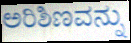
ಅರಿಶಿಣವನ್ನು